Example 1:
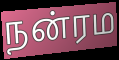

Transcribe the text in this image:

நன்ரம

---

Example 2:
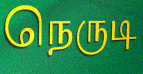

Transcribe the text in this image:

நெருடி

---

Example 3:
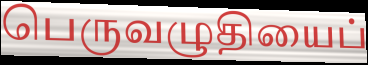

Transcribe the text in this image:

பெருவழுதியைப்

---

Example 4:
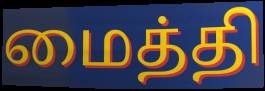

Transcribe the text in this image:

மைத்தி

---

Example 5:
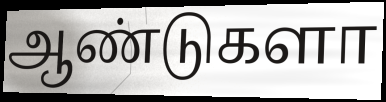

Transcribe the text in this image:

ஆண்டுகளா